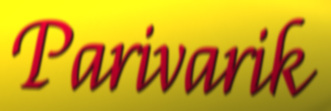
Parivarik